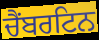
ਚੈਂਬਰਟਿਨ